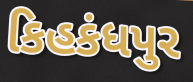
કિહકંધપુર